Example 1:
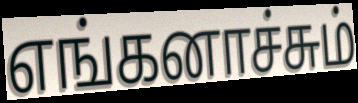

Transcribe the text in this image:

எங்கனாச்சும்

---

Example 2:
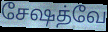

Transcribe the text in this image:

சேஷத்வே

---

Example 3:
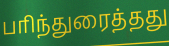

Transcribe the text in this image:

பரிந்துரைத்தது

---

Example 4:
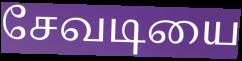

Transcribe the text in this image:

சேவடியை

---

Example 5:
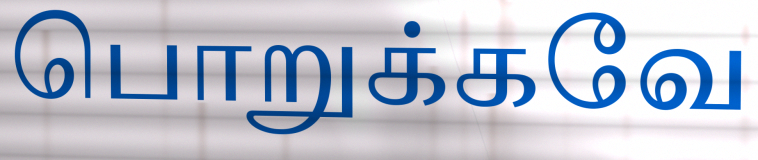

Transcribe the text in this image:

பொறுக்கவே